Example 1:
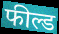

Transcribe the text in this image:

फील्ड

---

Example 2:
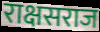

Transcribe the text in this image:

राक्षसराज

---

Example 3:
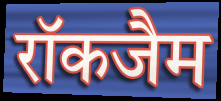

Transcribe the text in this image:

रॉकजैम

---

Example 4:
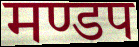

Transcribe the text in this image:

मण्‍डप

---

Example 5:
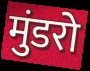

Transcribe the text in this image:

मुंडरो